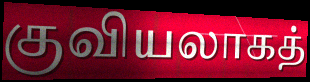
குவியலாகத்